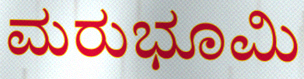
ಮರುಭೂಮಿ